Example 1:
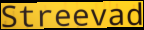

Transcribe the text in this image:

Streevad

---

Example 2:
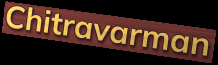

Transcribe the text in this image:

Chitravarman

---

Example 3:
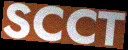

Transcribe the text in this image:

SCCT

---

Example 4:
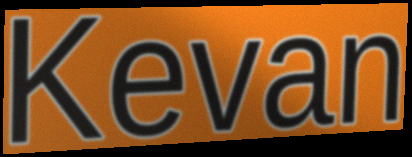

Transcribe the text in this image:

Kevan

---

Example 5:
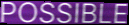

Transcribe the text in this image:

POSSIBLE